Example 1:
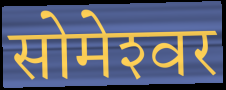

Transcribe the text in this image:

सोमेश्वर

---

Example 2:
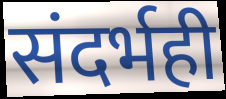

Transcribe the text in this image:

संदर्भही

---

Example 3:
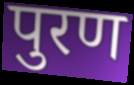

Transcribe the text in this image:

पुरण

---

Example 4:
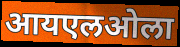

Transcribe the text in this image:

आयएलओला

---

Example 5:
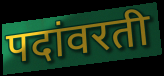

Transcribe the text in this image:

पदांवरती